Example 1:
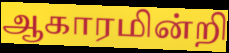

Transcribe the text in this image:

ஆகாரமின்றி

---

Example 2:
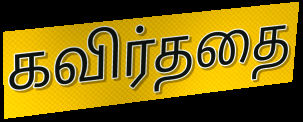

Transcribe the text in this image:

கவிர்ததை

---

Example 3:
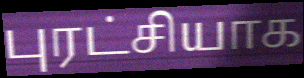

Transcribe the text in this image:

புரட்சியாக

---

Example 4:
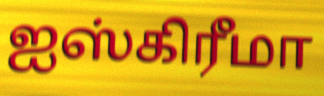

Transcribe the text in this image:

ஐஸ்கிரீமா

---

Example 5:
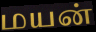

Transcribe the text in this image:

மயன்